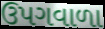
ઉપગવાળા